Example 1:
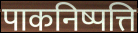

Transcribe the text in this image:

पाकनिष्पत्ति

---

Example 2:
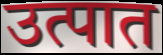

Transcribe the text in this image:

उत्पात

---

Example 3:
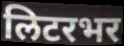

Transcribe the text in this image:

लिटरभर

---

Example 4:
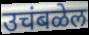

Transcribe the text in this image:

उचंबळेल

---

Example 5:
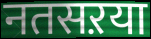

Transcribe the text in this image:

नतसऱया